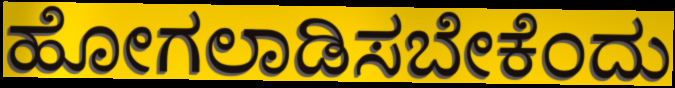
ಹೋಗಲಾಡಿಸಬೇಕೆಂದು